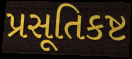
પ્રસૂતિકષ્ટ